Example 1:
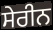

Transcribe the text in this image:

ਸੇਰੀਨ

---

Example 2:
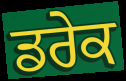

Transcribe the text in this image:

ਡਰੇਕ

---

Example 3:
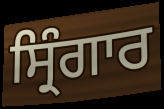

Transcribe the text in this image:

ਸ੍ਰਿੰਗਾਰ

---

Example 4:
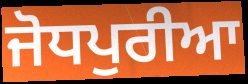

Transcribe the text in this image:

ਜੋਧਪੁਰੀਆ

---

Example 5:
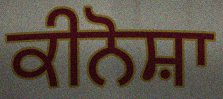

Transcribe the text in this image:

ਕੀਨੋਸ਼ਾ